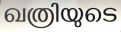
ഖത്രിയുടെ